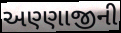
અણ્ણાજીની